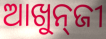
ଆଖୁନ୍‌ଜୀ